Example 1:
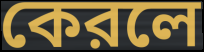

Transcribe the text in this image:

কেরলে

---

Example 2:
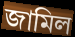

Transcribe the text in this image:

জামিল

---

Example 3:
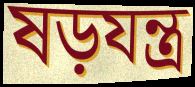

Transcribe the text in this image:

ষড়যন্ত্র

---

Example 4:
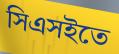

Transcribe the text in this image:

সিএসইতে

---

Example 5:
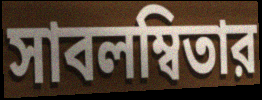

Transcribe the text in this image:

সাবলম্বিতার